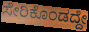
ಸೇರಿಕೊಂಡದ್ದೇ